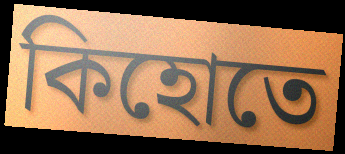
কিহোতে